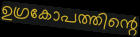
ഉഗ്രകോപത്തിന്റെ